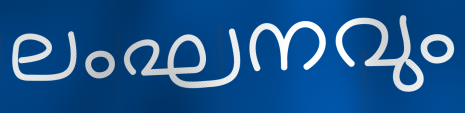
ലംഘനവും